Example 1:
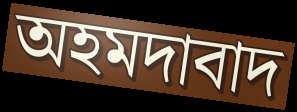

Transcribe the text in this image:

অহমদাবাদ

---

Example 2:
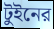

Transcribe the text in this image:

টুইনের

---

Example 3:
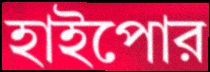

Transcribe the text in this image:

হাইপোর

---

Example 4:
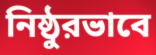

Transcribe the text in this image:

নিষ্ঠুরভাবে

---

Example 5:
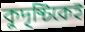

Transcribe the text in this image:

কুদৃষ্টিকেই